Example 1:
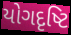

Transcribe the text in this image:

યોગદૃષ્ટિ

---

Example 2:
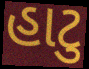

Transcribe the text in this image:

હાટુ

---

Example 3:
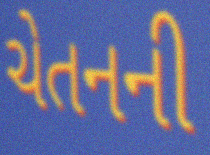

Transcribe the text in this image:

ચેતનની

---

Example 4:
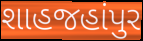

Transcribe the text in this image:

શાહજહાંપુર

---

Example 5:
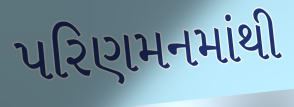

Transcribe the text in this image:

પરિણમનમાંથી